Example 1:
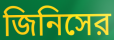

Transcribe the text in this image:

জিনিসের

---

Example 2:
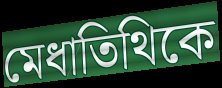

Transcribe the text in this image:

মেধাতিথিকে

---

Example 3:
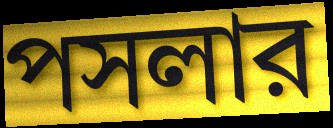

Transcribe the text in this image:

পসলার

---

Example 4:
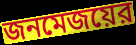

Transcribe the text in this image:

জনমেজয়ের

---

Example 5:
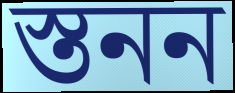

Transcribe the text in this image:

স্তনন